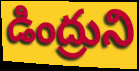
డింద్రుని